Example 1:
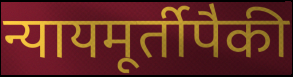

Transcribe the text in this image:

न्यायमूर्तीपैकी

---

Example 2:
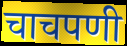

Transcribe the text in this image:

चाचपणी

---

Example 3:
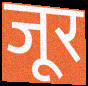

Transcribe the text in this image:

जूर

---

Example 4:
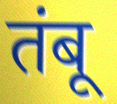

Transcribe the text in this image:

तंबू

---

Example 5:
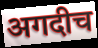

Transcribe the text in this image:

अगदीच